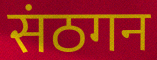
संठगन